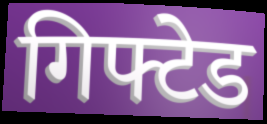
गिफ्टेड